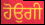
ਹੋਉਗੀ